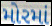
મોરમાં